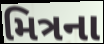
મિત્રના